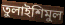
তুলাইশিমুল